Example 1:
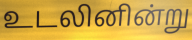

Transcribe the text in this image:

உடலினின்று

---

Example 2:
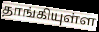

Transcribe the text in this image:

தாங்கியுள்ள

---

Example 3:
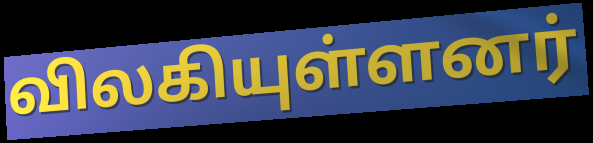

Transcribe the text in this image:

விலகியுள்ளனர்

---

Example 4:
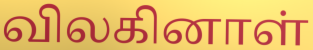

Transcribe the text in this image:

விலகினாள்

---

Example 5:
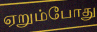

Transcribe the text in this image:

ஏறும்போது